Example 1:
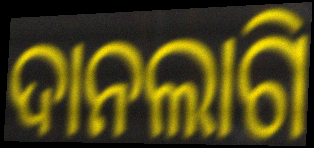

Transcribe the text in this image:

ଦାନଲାଗି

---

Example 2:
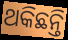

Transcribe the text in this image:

ଥକିଛନ୍ତି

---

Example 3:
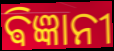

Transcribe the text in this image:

ଵିଜ୍ଞାନୀ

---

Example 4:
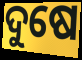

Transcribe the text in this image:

ଦୁଷେ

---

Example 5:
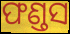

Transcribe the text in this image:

ଫଣ୍ଡସ